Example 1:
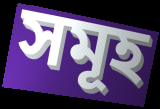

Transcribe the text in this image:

সমূহ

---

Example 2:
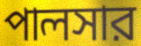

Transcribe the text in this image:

পালসার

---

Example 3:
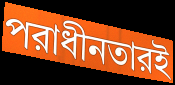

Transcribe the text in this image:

পরাধীনতারই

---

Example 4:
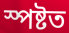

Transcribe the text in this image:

স্পষ্টত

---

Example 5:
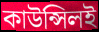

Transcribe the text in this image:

কাউন্সিলই